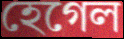
হেগেল